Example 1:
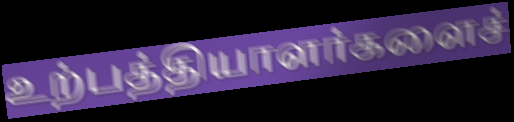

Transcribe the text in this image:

உற்பத்தியாளர்களைச்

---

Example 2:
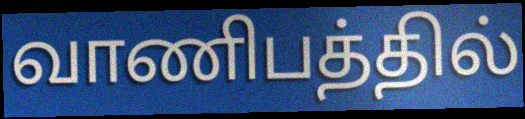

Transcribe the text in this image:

வாணிபத்தில்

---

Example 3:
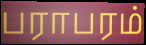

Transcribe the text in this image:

பராபரம்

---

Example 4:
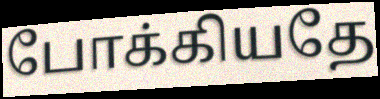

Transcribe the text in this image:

போக்கியதே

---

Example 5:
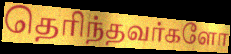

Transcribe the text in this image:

தெரிந்தவர்களோ